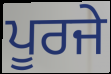
ਪੂਰਜੇ